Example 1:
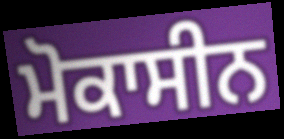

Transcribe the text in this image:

ਮੋਕਾਸੀਨ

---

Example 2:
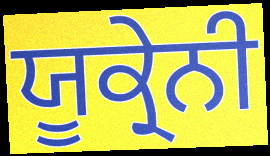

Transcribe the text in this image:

ਯੂਕ੍ਰੇਨੀ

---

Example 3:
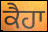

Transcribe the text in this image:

ਕੈਹਾ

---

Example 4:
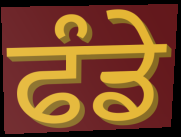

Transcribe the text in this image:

ਫੰਡੇ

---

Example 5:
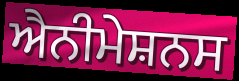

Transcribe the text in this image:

ਐਨੀਮੇਸ਼ਨਸ